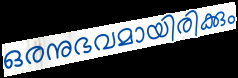
ഒരനുഭവമായിരിക്കും